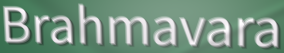
Brahmavara